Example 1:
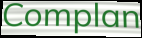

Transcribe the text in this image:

Complan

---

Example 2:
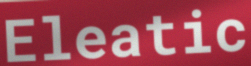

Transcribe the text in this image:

Eleatic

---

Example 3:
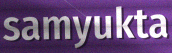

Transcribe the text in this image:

samyukta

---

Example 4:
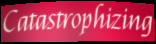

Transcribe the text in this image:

Catastrophizing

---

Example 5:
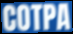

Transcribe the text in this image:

COTPA